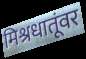
मिश्रधातूंवर